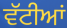
ਵੱਟੀਆਂ